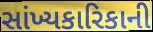
સાંખ્યકારિકાની